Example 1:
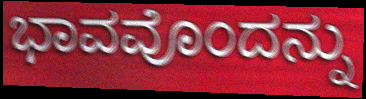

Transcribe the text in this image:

ಭಾವವೊಂದನ್ನು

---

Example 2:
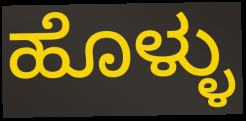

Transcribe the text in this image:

ಹೊಳ್ಳು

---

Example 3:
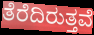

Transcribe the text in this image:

ತೆರೆದಿರುತ್ತವೆ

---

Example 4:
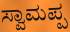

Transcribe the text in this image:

ಸ್ವಾಮಪ್ಪ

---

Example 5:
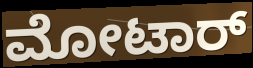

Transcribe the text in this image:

ಮೋಟಾರ್